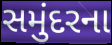
સમુંદરના